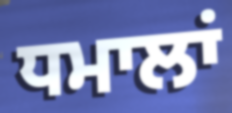
ਧਮਾਲਾਂ